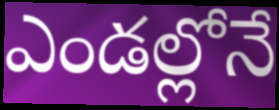
ఎండల్లోనే